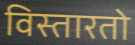
विस्तारतो